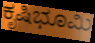
ಕೃಷಿಭೂಮಿ